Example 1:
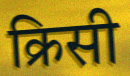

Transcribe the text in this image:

क्रिसी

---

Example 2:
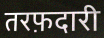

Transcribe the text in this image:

तरफ़दारी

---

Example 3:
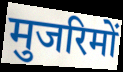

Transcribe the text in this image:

मुजरिमों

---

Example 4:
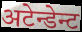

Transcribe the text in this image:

अटेन्डेन्ट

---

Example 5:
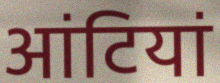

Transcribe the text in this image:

आंटियां